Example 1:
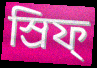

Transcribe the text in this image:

স্রিফ্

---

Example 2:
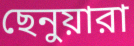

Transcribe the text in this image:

ছেনুয়ারা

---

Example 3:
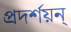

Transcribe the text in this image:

প্রদর্শয়ন্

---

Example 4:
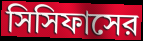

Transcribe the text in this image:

সিসিফাসের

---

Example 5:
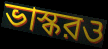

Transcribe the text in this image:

ভাস্করও